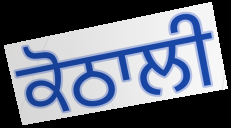
ਕੋਠਾਲੀ